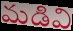
మడివి